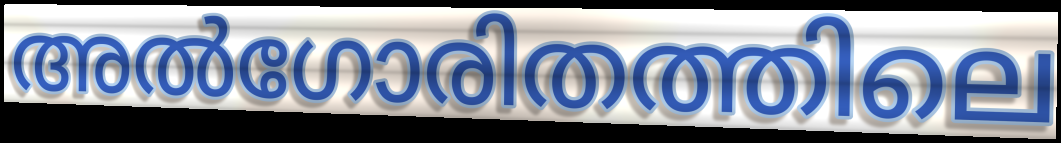
അൽഗോരിതത്തിലെ